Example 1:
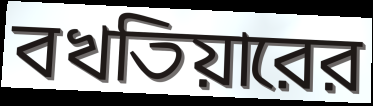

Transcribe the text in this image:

বখতিয়ারের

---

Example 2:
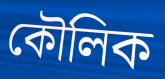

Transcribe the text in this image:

কৌলিক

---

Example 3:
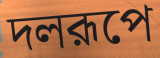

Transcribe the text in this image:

দলরূপে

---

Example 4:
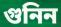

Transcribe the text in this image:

গুনিন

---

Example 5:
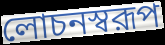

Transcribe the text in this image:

লোচনস্বরূপ